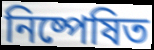
নিষ্পেষিত